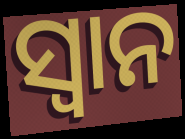
ସ୍ୱାନ